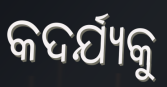
କଦର୍ଯ୍ୟକୁ